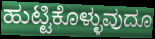
ಹುಟ್ಟಿಕೊಳ್ಳುವುದೂ